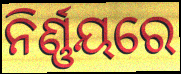
ନିର୍ଣ୍ଣୟରେ